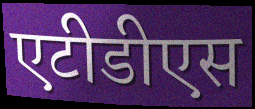
एटीडीएस